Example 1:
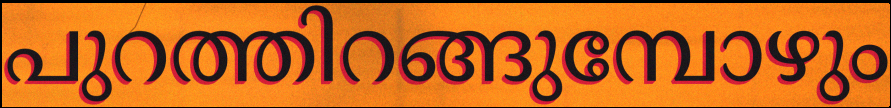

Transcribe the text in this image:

പുറത്തിറങ്ങുമ്പോഴും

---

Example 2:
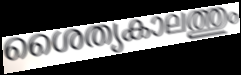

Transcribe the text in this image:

ശൈത്യകാലത്തും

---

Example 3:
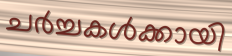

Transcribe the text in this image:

ചർച്ചകൾക്കായി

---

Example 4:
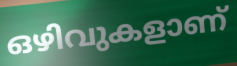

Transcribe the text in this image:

ഒഴിവുകളാണ്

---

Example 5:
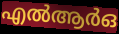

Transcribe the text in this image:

എൽആർഒ